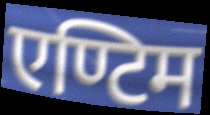
एण्टिम